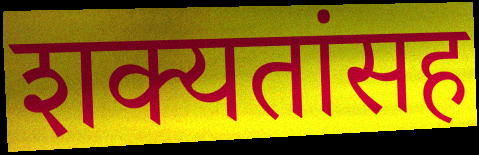
शक्यतांसह